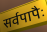
सर्वपापैः